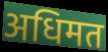
अधिमत